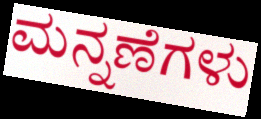
ಮನ್ನಣೆಗಳು